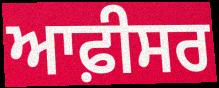
ਆਫ਼ੀਸਰ